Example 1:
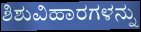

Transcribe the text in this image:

ಶಿಶುವಿಹಾರಗಳನ್ನು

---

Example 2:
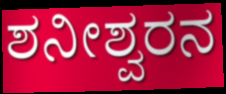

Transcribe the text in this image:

ಶನೀಶ್ವರನ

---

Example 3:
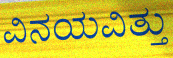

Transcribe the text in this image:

ವಿನಯವಿತ್ತು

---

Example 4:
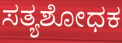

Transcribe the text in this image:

ಸತ್ಯಶೋಧಕ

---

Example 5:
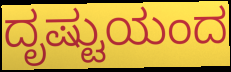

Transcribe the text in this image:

ದೃಷ್ಟುಯಂದ